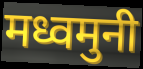
मध्वमुनी